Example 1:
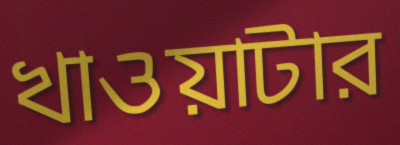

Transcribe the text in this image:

খাওয়াটার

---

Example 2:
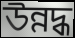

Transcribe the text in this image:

উন্নদ্ধ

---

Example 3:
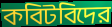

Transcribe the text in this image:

কবিটবিদের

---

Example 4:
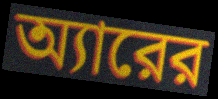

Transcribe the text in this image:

অ্যারের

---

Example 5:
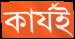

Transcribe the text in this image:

কার্যই